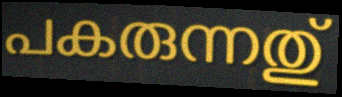
പകരുന്നതു്